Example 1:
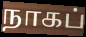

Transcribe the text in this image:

நாகப்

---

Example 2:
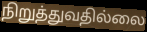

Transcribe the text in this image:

நிறுத்துவதில்லை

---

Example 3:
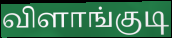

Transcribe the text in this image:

விளாங்குடி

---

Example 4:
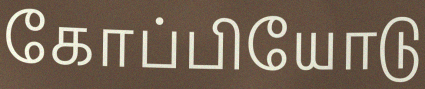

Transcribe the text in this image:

கோப்பியோடு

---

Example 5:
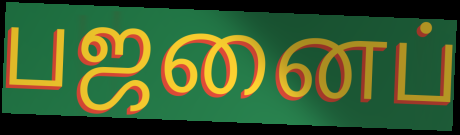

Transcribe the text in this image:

பஜனைப்